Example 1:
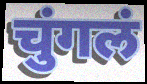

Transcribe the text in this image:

चुंगलं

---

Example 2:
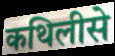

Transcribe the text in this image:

कथिलीसे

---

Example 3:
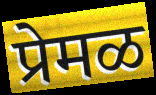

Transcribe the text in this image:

प्रेमळ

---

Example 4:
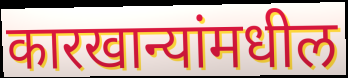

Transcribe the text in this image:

कारखान्यांमधील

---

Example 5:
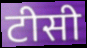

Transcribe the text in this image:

टीसी